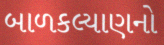
બાળકલ્યાણનો